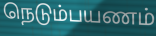
நெடும்பயணம்